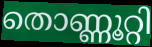
തൊണ്ണൂറ്റി